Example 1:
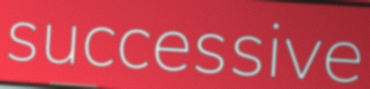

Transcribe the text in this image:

successive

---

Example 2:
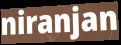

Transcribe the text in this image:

niranjan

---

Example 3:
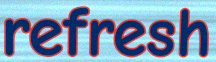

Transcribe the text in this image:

refresh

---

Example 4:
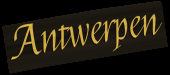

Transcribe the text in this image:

Antwerpen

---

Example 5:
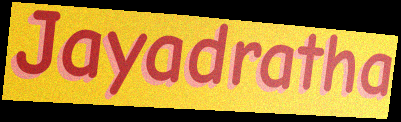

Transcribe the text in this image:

Jayadratha